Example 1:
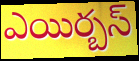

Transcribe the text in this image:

ఎయిర్బస్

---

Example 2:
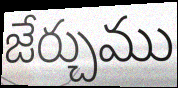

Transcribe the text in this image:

జేర్చుము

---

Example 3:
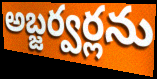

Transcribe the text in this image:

అబ్జర్వర్లను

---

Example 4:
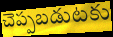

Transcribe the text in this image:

చెప్పబడుటకు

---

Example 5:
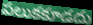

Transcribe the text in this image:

పలుకకూడదు